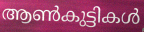
ആൺകുട്ടികൾ